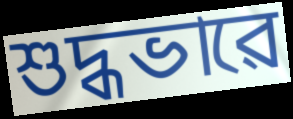
শুদ্ধভাৱে